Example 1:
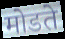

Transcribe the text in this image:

मोडते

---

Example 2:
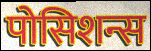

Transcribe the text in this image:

पोसिशन्स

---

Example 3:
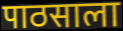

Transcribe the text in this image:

पाठसाला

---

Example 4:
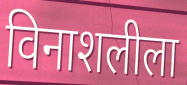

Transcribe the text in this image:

विनाशलीला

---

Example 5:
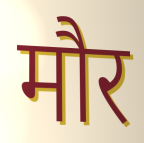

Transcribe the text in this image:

मौर